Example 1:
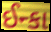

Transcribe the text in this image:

ઈન્કા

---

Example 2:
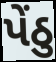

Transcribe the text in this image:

પેંઠુ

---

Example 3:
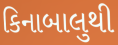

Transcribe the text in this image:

કિનાબાલુથી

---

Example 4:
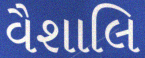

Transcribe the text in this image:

વૈશાલિ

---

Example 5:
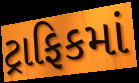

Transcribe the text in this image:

ટ્રાફિકમાં